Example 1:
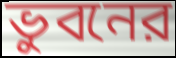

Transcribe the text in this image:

ভুবনের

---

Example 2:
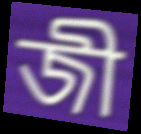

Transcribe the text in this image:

জী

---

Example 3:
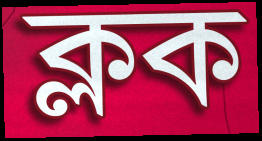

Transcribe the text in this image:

ক্লক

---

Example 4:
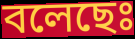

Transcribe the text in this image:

বলেছেঃ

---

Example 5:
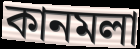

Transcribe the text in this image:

কানমলা